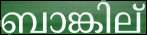
ബാങ്കില്